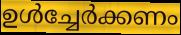
ഉൾച്ചേർക്കണം